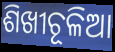
ଶିଖୀଚୂଳିଆ